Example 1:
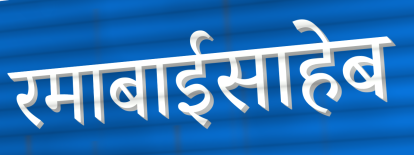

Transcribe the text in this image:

रमाबाईसाहेब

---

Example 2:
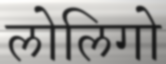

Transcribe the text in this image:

लोलिगो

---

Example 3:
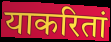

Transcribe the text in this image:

याकरितां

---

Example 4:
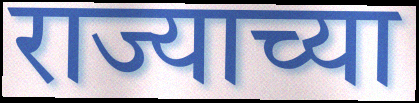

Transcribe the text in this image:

राज्याच्या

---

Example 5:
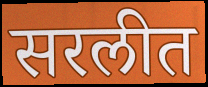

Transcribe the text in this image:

सरलीत